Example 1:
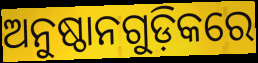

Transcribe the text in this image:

ଅନୁଷ୍ଠାନଗୁଡ଼ିକରେ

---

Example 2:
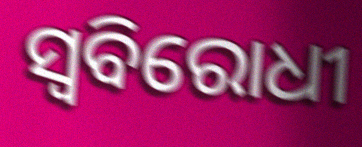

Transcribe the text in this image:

ସ୍ୱବିରୋଧୀ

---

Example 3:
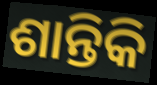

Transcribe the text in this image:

ଶାନ୍ତିକି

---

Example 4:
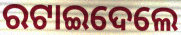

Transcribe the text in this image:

ରଟାଇଦେଲେ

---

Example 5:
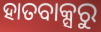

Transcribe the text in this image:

ହାତବାକ୍ସରୁ